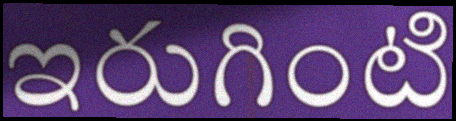
ఇరుగింటి